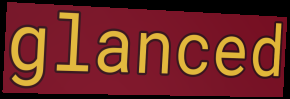
glanced